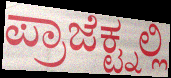
ಪ್ರಾಜೆಕ್ಟ್ನಲ್ಲಿ